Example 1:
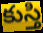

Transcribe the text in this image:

కుస్తి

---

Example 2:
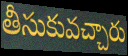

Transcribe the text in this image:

తీసుకువచ్చారు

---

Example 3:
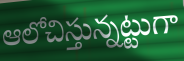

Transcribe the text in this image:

ఆలోచిస్తున్నట్టుగా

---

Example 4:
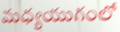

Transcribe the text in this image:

మధ్యయుగంలో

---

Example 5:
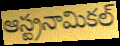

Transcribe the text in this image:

ఆస్ట్రనామికల్